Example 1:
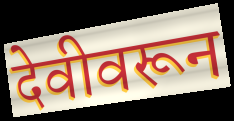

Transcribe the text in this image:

देवीवरून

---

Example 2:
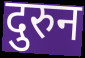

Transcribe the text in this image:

दुरुन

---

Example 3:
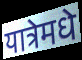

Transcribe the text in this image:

यात्रेमधे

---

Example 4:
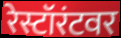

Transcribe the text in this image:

रेस्टॉरंटवर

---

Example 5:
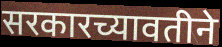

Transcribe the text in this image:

सरकारच्यावतीने